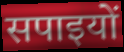
सपाइयों